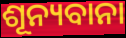
ଶୂନ୍ୟବାନା